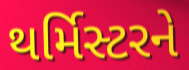
થર્મિસ્ટરને